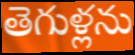
తెగుళ్లను